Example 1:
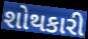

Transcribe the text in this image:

શોથકારી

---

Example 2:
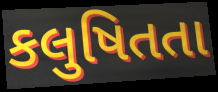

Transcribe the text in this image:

કલુષિતતા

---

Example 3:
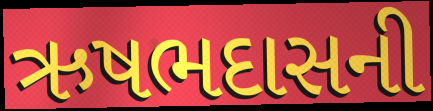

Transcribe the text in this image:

ઋષભદાસની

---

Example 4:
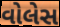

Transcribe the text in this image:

વોલેસ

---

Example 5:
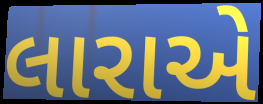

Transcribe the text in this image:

લારાએ